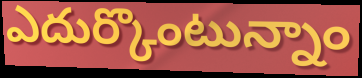
ఎదుర్కొంటున్నాం